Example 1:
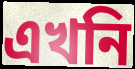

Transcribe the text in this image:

এখনি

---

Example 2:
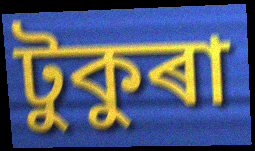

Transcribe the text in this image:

টুকুৰা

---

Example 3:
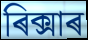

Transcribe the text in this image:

ৰিক্সাৰ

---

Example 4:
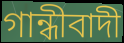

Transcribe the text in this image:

গান্ধীবাদী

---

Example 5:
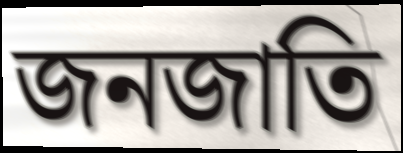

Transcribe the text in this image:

জনজাতি